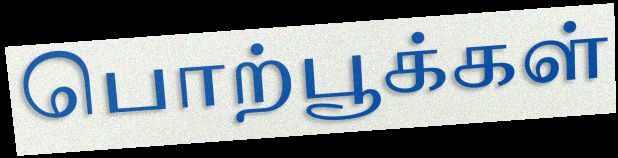
பொற்பூக்கள்